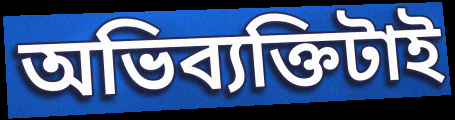
অভিব্যক্তিটাই